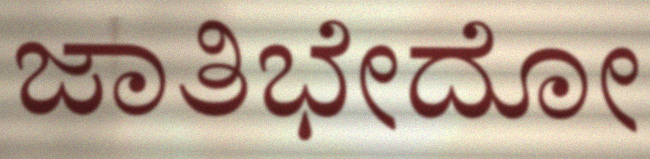
ಜಾತಿಭೇದೋ